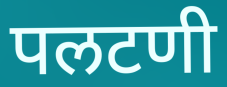
पलटणी